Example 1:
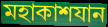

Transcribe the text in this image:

মহাকাশযান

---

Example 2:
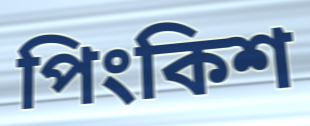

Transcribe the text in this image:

পিংকিশ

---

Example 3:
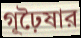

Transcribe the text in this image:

গূঢ়ৈষার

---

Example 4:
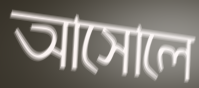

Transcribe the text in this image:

আসোলে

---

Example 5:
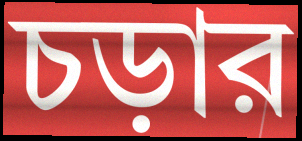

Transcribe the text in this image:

চড়ার